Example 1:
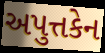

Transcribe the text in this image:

અપુત્તકેન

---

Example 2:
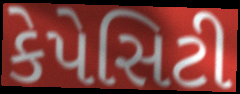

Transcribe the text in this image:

કેપેસિટી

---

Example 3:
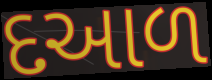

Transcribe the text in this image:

દઆળ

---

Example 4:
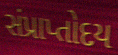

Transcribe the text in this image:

સંપ્રાપ્તોદય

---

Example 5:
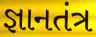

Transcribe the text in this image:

જ્ઞાનતંત્ર